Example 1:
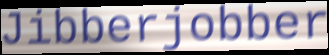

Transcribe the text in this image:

Jibberjobber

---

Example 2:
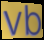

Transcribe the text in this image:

vb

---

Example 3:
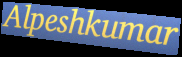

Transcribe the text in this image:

Alpeshkumar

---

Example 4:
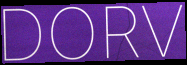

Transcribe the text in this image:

DORV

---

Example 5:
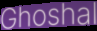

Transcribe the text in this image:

Ghoshal